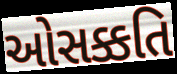
ઓસક્કતિ